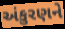
અંકુરણને